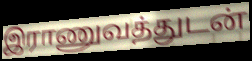
இராணுவத்துடன்